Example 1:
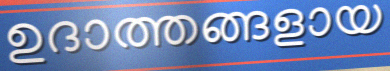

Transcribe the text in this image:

ഉദാത്തങ്ങളായ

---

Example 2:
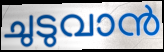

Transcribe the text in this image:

ചുടുവാൻ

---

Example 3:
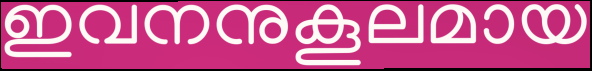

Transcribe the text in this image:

ഇവനനുകൂലമായ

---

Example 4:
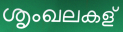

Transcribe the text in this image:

ശൃംഖലകള്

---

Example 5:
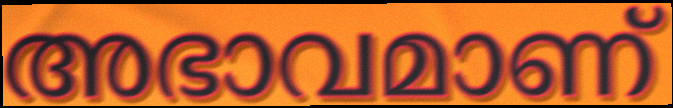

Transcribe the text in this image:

അഭാവമാണ്